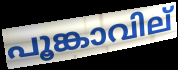
പൂങ്കാവില്